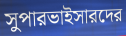
সুপারভাইসারদের